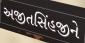
અજીતસિંહજીને